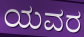
ಯವರ